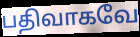
பதிவாகவே